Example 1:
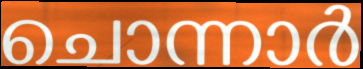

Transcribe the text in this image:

ചൊന്നാർ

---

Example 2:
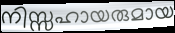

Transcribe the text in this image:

നിസ്സഹായരുമായ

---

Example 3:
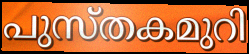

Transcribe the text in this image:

പുസ്തകമുറി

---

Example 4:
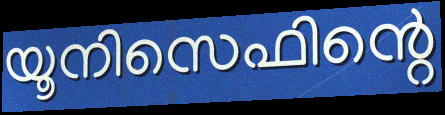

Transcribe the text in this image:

യൂനിസെഫിന്റെ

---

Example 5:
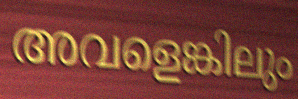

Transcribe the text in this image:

അവളെങ്കിലും